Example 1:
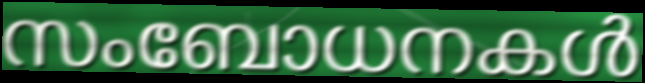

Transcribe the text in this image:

സംബോധനകൾ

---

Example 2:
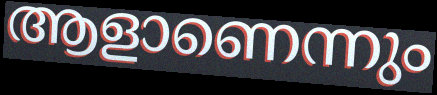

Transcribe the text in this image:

ആളാണെന്നും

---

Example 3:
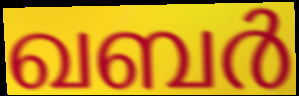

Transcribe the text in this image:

ഖബർ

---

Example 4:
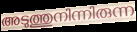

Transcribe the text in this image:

അടുത്തുനിന്നിരുന്ന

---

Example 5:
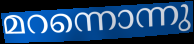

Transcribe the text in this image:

മറന്നൊന്നു